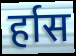
र्हास